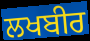
ਲਖਬੀਰ